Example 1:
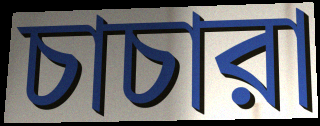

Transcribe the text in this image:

চাচারা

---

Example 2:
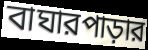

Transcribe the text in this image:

বাঘারপাড়ার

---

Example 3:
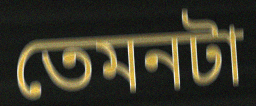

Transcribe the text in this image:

তেমনটা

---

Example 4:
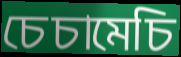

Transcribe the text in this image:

চেচামেচি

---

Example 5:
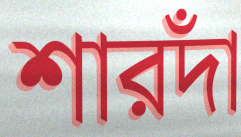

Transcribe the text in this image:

শারদাঁ